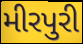
મીરપુરી